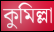
কুমিল্লা